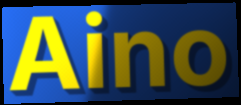
Aino